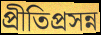
প্রীতিপ্রসন্ন